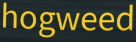
hogweed